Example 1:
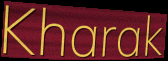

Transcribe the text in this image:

Kharak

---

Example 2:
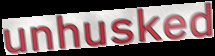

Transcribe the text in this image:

unhusked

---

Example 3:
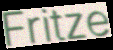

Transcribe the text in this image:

Fritze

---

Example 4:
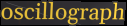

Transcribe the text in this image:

oscillograph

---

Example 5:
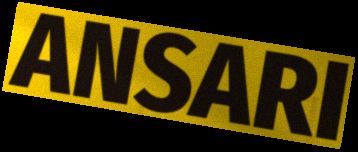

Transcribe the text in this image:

ANSARI